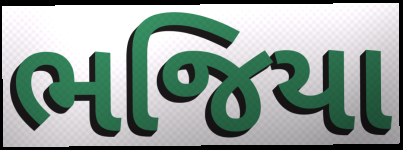
ભજિયા